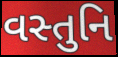
વસ્તુનિ